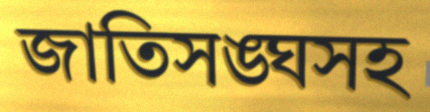
জাতিসঙ্ঘসহ